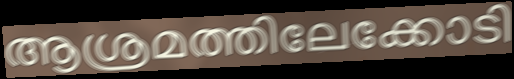
ആശ്രമത്തിലേക്കോടി